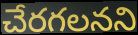
చేరగలనని